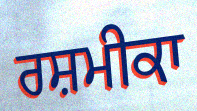
ਰਸ਼ਮੀਕਾ